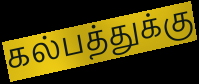
கல்பத்துக்கு